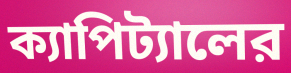
ক্যাপিট্যালের